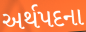
અર્થપદના